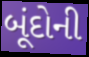
બૂંદોની